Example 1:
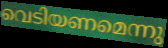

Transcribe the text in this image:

വെടിയണമെന്നു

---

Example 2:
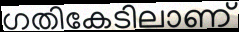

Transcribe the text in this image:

ഗതികേടിലാണ്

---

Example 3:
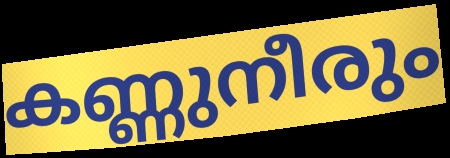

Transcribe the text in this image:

കണ്ണുനീരും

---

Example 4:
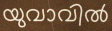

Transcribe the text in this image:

യുവാവിൽ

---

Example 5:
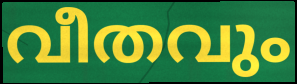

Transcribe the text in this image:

വീതവും